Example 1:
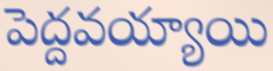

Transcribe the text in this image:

పెద్దవయ్యాయి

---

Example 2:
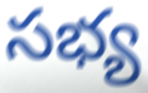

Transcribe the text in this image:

సభ్య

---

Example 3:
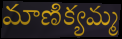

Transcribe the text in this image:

మాణిక్యమ్మ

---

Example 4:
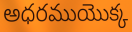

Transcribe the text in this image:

అధరముయొక్క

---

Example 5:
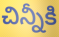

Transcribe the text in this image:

చిన్నీకి